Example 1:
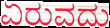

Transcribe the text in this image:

ಏರುವದು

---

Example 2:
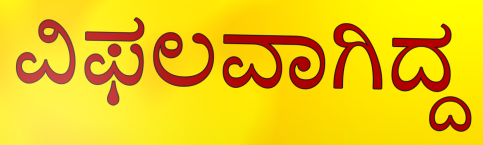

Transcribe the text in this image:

ವಿಫಲವಾಗಿದ್ದ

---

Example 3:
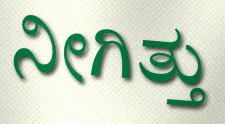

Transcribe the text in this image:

ನೀಗಿತ್ತು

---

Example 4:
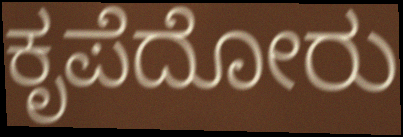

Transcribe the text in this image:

ಕೃಪೆದೋರು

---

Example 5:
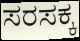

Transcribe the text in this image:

ಸರಸಕ್ಕ